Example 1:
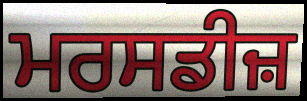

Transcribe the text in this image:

ਮਰਸਡੀਜ਼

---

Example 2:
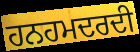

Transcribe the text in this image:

ਹਨਹਮਦਰਦੀ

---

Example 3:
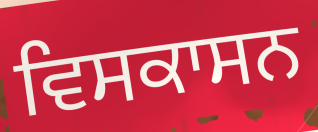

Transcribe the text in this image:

ਵਿਸਕਾਸਨ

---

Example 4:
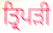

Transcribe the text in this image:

ਤ੍ਰਿਪਡ਼ੀ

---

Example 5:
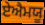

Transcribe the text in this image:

ਏਐਮਯੂ